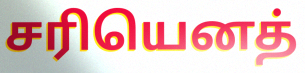
சரியெனத்